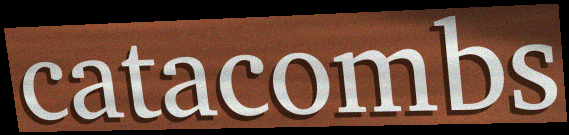
catacombs